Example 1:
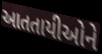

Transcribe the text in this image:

આતતાયીઓને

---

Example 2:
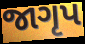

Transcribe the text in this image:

જાગૃપ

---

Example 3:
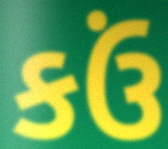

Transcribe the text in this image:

કઉં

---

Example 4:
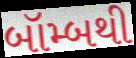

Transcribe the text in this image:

બૉમ્બથી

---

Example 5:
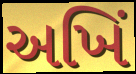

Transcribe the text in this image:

અખિં